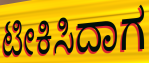
ಟೀಕಿಸಿದಾಗ